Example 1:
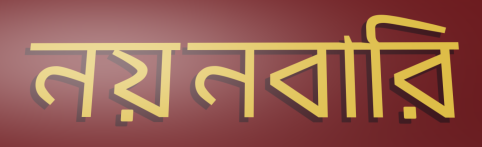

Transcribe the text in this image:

নয়নবারি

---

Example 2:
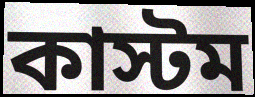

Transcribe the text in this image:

কাস্টম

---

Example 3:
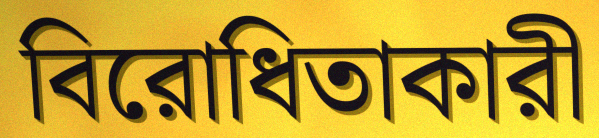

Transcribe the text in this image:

বিরোধিতাকারী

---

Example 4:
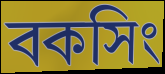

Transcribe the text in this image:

বকসিং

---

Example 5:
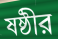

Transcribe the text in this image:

ষষ্ঠীর